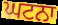
ਘਟਨਾ